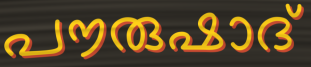
പൗരുഷാദ്